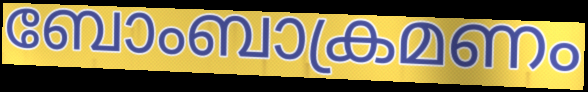
ബോംബാക്രമണം